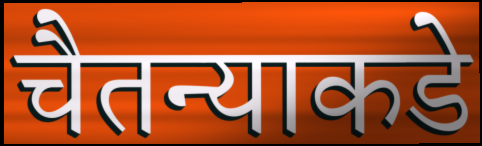
चैतन्याकडे